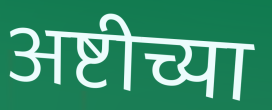
अष्टीच्या